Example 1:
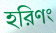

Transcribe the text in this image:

হরিণং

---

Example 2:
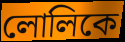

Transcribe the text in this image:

লোলিকে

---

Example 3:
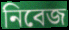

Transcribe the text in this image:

নিবেজ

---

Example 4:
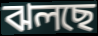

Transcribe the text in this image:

ঝলছে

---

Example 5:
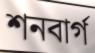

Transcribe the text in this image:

শনবার্গ